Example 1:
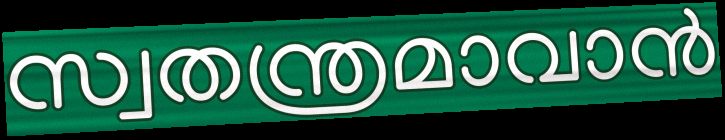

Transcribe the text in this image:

സ്വതന്ത്രമാവാൻ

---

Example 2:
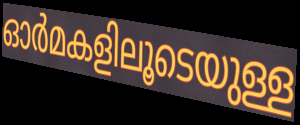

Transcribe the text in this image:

ഓർമകളിലൂടെയുള്ള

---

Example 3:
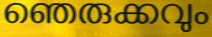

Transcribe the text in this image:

ഞെരുക്കവും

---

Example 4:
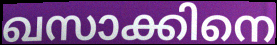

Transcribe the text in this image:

ഖസാക്കിനെ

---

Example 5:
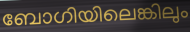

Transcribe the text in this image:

ബോഗിയിലെങ്കിലും